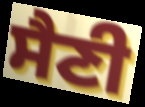
ਸੈਣੀ